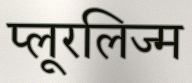
प्लूरलिज्म